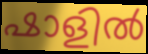
ഷാളിൽ